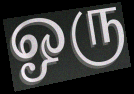
ஓரு